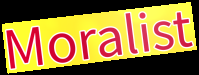
Moralist